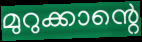
മുറുക്കാന്റെ